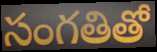
సంగతితో